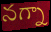
నగ్నా